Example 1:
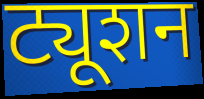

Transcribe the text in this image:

ट्यूशन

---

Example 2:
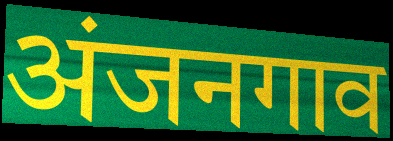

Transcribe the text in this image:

अंजनगाव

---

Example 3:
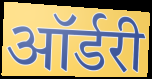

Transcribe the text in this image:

ऑर्डरी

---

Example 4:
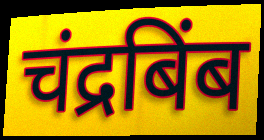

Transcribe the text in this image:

चंद्रबिंब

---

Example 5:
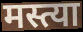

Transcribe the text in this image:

मस्त्या